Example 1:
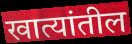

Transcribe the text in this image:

खात्यांतील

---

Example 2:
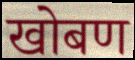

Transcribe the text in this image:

खोबण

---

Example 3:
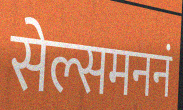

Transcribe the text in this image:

सेल्समननं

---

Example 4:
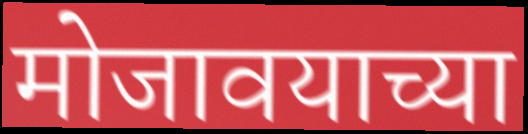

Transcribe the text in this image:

मोजावयाच्या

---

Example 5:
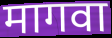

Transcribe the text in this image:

मागवा